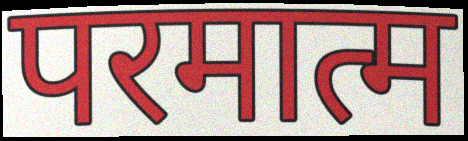
परमात्म